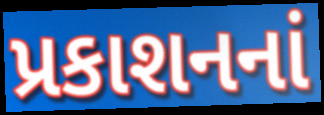
પ્રકાશનનાં